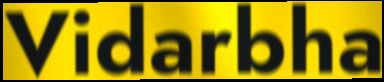
Vidarbha